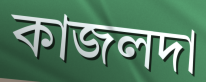
কাজলদা